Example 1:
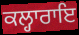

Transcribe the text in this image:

ਕਲ੍ਹਾਰਾਇ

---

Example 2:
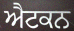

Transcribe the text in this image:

ਐਟਕਨ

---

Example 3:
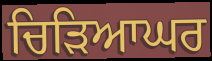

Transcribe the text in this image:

ਚਿੜਿਆਘਰ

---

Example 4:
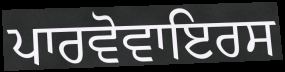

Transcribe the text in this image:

ਪਾਰਵੋਵਾਇਰਸ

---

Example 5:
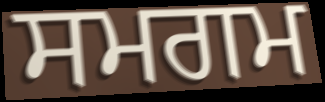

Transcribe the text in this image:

ਸਮਗਮ